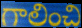
గాలించి